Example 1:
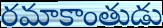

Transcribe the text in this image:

రమాకాంతుడు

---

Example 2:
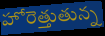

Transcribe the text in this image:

హోరెత్తుతున్న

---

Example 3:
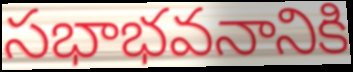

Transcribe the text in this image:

సభాభవనానికి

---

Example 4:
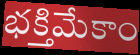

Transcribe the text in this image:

భక్తిమేకాం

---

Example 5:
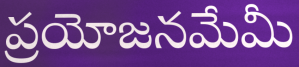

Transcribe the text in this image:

ప్రయోజనమేమీ